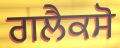
ਗਲੈਕਸੋ